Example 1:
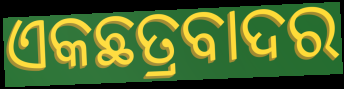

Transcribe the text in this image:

ଏକଛତ୍ରବାଦର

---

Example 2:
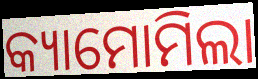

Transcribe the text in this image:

କ୍ୟାମୋମିଲା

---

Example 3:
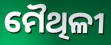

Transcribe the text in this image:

ମୈଥିଳୀ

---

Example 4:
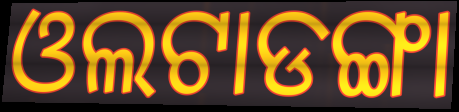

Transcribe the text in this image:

ଓଲଟାଡଙ୍ଗା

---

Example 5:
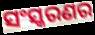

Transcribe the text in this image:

ସଂସ୍କରଣର